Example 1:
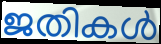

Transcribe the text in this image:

ജതികൾ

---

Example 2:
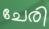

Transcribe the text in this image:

ചേരി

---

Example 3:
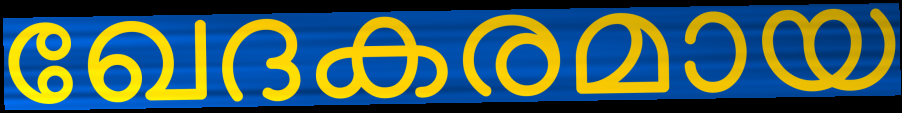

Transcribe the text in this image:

ഖേദകരമായ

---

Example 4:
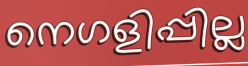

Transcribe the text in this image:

നെഗളിപ്പില്ല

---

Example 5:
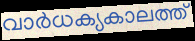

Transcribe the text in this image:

വാർധക്യകാലത്ത്